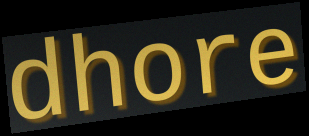
dhore